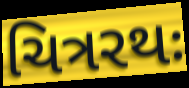
ચિત્રરથઃ